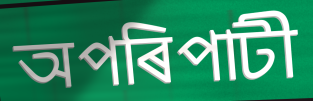
অপৰিপাটী